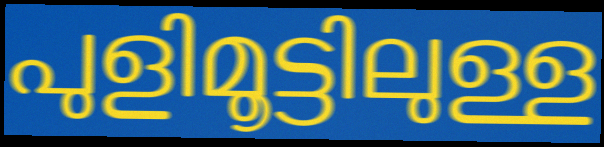
പുളിമൂട്ടിലുള്ള